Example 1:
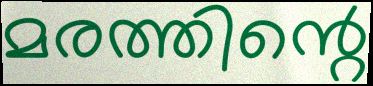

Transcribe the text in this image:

മരത്തിന്റെ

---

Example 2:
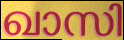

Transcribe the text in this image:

ഖാസി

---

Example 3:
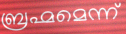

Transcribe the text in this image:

ബ്രഹ്മമെന്ന്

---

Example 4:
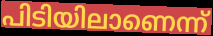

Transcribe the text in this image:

പിടിയിലാണെന്ന്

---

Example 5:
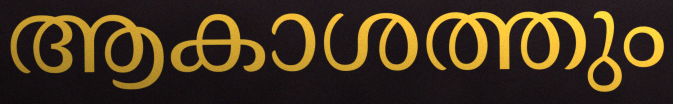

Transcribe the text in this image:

ആകാശത്തും